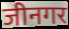
जीनगर